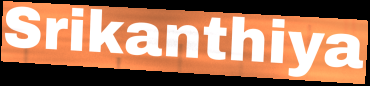
Srikanthiya